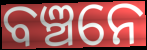
ବଞ୍ଚନେ